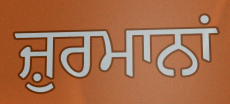
ਜ਼ੁਰਮਾਨਾਂ